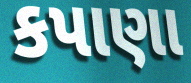
કપાણા